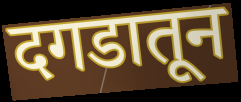
दगडातून